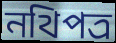
নথিপত্ৰ